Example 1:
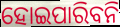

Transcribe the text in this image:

ହୋଇପାରିବନି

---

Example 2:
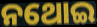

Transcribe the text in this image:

ନଥୋଇ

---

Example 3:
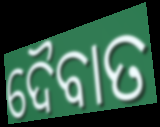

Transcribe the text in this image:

ଦୈବାତ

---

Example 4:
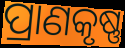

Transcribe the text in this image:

ପ୍ରାଣକୃଷ୍ଣ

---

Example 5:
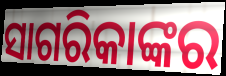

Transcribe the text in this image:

ସାଗରିକାଙ୍କର